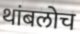
थांबलोच